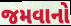
જમવાનો